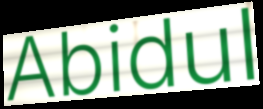
Abidul